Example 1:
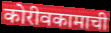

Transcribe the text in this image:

कोरीवकामाची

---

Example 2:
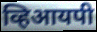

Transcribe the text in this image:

व्हिआयपी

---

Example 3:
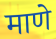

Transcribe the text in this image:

माणे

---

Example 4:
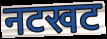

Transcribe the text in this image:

नटखट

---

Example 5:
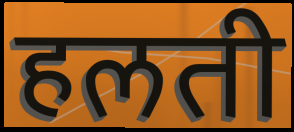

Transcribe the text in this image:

हलती